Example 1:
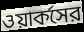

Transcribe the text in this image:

ওয়ার্কসের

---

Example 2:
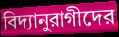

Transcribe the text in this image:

বিদ্যানুরাগীদের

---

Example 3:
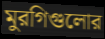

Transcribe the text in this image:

মুরগিগুলোর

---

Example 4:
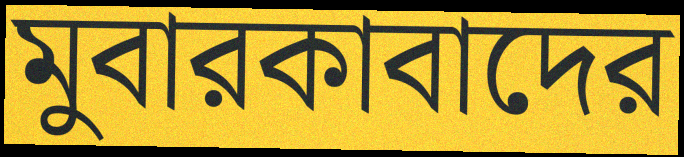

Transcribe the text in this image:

মুবারকাবাদের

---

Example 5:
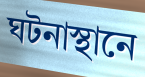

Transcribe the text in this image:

ঘটনাস্থানে